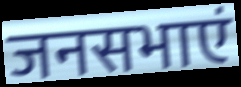
जनसभाएं